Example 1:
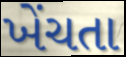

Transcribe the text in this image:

ખેંચતા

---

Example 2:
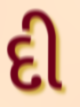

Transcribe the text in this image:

દી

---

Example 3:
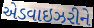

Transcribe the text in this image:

એડવાઇઝરીને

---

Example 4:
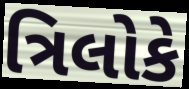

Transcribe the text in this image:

ત્રિલોકે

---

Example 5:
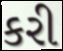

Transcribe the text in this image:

કરી